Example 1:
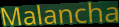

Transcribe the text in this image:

Malancha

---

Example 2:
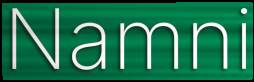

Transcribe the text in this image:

Namni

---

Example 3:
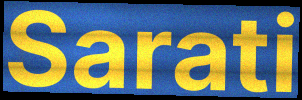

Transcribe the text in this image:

Sarati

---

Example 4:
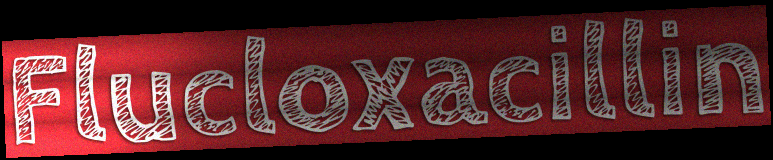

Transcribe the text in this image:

Flucloxacillin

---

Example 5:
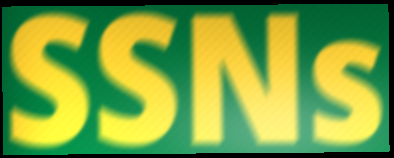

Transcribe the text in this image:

SSNs